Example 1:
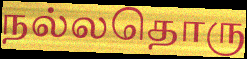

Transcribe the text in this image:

நல்லதொரு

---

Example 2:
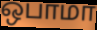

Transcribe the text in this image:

ஒபாமா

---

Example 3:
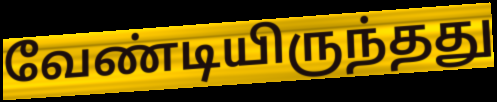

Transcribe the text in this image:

வேண்டியிருந்தது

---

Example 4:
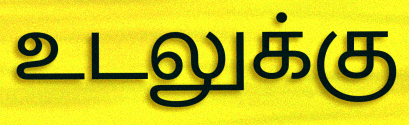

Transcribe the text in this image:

உடலுக்கு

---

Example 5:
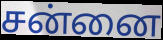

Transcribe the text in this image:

சன்னை